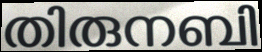
തിരുനബി